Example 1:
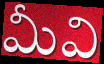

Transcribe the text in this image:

మీవి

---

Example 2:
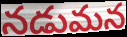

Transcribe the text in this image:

నడుమన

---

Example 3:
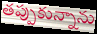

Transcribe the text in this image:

తప్పుకున్నాను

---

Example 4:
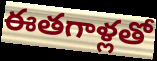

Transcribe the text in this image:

ఈతగాళ్లతో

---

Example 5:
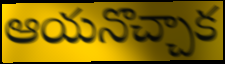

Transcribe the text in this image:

ఆయనొచ్చాక